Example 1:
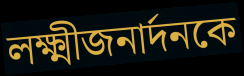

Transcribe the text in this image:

লক্ষ্মীজনার্দনকে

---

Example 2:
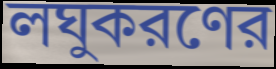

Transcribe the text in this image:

লঘুকরণের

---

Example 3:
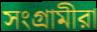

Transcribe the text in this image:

সংগ্রামীরা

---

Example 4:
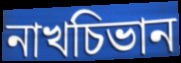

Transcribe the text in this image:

নাখচিভান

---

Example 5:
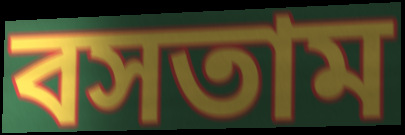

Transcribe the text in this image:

বসতাম